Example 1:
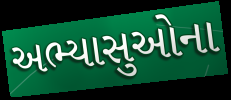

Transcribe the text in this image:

અભ્યાસુઓના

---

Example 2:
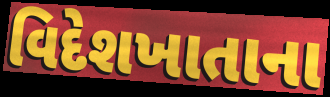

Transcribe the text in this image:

વિદેશખાતાના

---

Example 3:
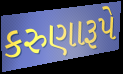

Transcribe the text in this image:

કરુણારૂપે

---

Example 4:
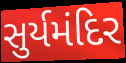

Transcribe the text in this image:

સુર્યમંદિર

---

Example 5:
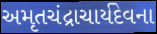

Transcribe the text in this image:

અમૃતચંદ્રાચાર્યદેવના